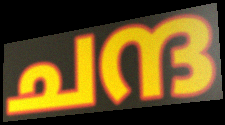
ചന്ദ